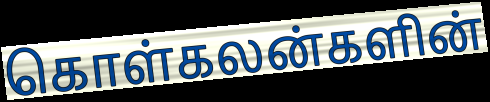
கொள்கலன்களின்